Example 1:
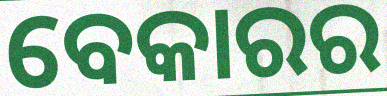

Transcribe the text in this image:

ବେକାରର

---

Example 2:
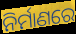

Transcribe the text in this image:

ନିର୍ମାଣରେ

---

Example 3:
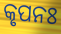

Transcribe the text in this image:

କୃପନଃ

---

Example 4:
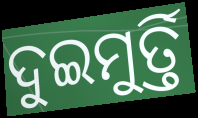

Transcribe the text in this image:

ଦୁଇମୁର୍ତ୍ତି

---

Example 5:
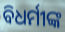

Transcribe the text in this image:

ବିଧର୍ମୀଙ୍କ